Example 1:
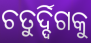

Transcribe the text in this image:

ଚତୁର୍ଦ୍ଦିଗକୁ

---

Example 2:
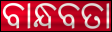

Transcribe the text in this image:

ବାନ୍ଧବତା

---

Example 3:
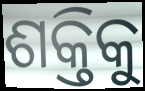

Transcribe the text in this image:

ଶକ୍ତିକୁ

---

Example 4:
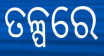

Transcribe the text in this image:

ତଳ୍ପରେ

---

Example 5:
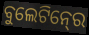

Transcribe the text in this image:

ବୁଲେଟିନ୍‍ରେ